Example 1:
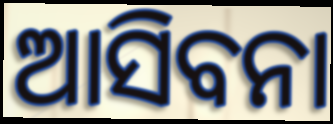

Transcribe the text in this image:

ଆସିବନା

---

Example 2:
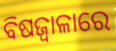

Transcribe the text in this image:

ବିଷଜ୍ୱାଳାରେ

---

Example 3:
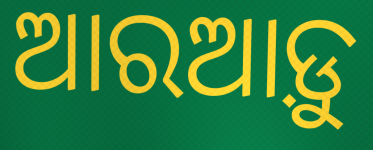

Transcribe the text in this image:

ଆରଆଡ଼ୁ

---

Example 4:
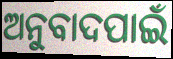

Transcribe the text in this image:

ଅନୁବାଦପାଇଁ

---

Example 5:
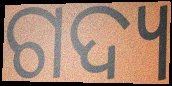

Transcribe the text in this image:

ଗଦ୍ୟ